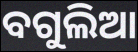
ବଗୁଲିଆ